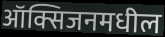
ऑक्सिजनमधील